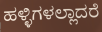
ಹಳ್ಳಿಗಳಲ್ಲಾದರೆ